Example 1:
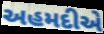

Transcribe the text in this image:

અહમદીએ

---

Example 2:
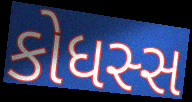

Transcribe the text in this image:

કોધસ્સ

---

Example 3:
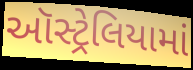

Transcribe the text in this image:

ઑસ્ટ્રેલિયામાં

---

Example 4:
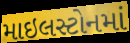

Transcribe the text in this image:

માઇલસ્ટોનમાં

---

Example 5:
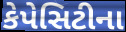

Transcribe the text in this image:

કેપેસિટીના